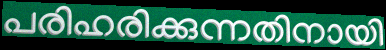
പരിഹരിക്കുന്നതിനായി